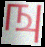
ஙு